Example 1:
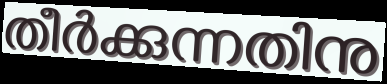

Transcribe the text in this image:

തീർക്കുന്നതിനു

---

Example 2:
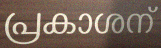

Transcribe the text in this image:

പ്രകാശന്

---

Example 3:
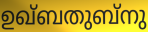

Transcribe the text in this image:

ഉഖ്ബതുബ്നു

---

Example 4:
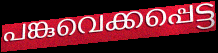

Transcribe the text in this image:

പങ്കുവെക്കപ്പെട്ട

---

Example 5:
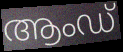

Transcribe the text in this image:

ആംഡ്